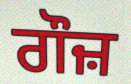
ਗੌਜ਼